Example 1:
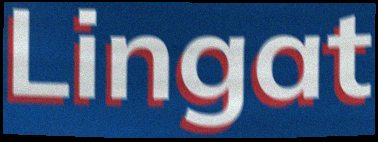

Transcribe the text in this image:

Lingat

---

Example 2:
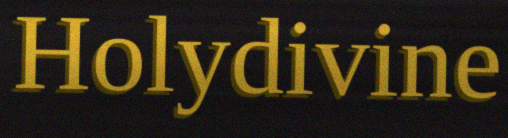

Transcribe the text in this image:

Holydivine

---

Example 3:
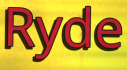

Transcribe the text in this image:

Ryde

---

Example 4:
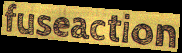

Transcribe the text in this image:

fuseaction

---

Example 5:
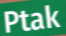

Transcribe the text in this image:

Ptak